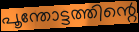
പൂന്തോട്ടത്തിന്റെ